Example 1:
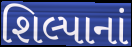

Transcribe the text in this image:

શિલ્પાનાં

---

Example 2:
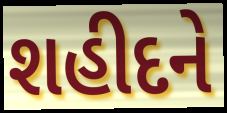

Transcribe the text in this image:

શહીદને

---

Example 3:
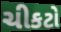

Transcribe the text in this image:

ચીકટો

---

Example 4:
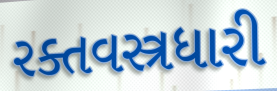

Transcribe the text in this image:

રક્તવસ્ત્રધારી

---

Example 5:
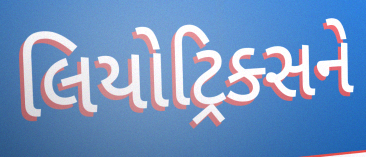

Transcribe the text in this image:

લિયોટ્રિક્સને